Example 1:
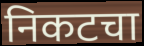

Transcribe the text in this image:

निकटचा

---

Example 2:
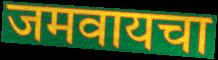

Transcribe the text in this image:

जमवायचा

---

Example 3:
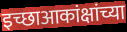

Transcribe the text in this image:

इच्छाआकांक्षांच्या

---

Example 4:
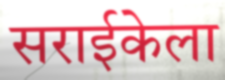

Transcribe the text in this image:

सराईकेला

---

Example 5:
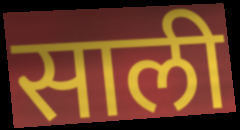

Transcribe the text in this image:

साली